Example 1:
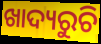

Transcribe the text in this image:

ଖାଦ୍ୟରୁଚି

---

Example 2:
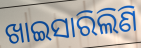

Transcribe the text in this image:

ଖାଇସାରିଲିଣି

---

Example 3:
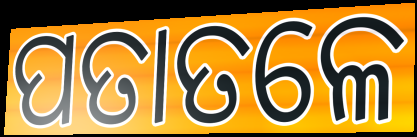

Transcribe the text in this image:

ପତାତଳେ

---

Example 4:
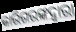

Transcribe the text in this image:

କାରିଗରଙ୍କଦ୍ୱାରା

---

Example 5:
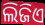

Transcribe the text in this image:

ଲିଜିଏ